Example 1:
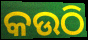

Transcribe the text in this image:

କଉଠି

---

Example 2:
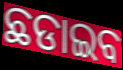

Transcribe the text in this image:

ଛଡାଇବ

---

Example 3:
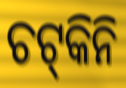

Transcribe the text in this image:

ଚଟ୍‍କିନି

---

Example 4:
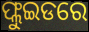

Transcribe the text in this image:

ଫ୍ଲୁଇଡରେ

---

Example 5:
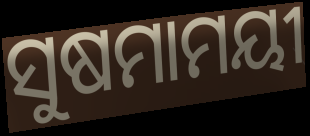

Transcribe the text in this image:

ସୁଷମାମୟୀ